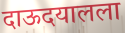
दाऊदयालला